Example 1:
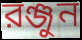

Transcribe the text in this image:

রঞ্জুন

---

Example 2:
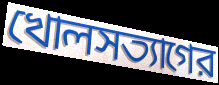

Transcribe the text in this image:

খোলসত্যাগের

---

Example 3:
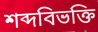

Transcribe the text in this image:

শব্দবিভক্তি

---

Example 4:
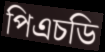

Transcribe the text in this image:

পিএচডি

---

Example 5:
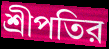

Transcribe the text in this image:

শ্রীপতির